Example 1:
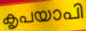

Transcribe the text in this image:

കൃപയാപി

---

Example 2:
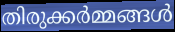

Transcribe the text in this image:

തിരുക്കർമ്മങ്ങൾ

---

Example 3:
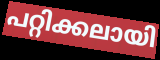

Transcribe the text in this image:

പറ്റിക്കലായി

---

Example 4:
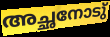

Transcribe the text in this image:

അച്ഛനോടു്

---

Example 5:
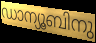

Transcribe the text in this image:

ഡാന്യൂബിനു